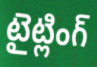
టైట్లింగ్